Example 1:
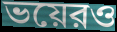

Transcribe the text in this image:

ভয়েরও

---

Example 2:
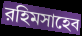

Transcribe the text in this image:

রহিমসাহেব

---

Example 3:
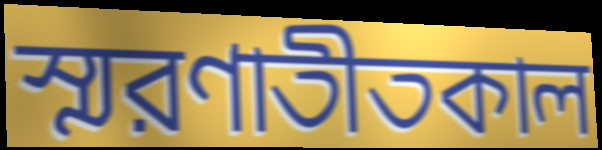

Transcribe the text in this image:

স্মরণাতীতকাল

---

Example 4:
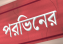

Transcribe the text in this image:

পরভিনের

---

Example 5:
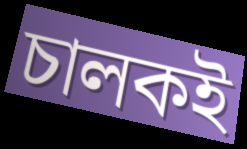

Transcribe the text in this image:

চালকই